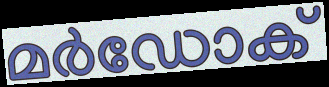
മർഡോക്